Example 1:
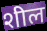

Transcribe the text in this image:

शील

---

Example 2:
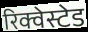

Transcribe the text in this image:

रिक्वेस्टेड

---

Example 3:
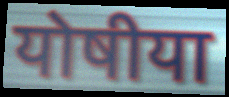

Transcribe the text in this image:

योषीया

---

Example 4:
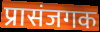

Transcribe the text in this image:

प्रासंजगक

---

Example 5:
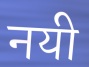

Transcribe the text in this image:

नयी